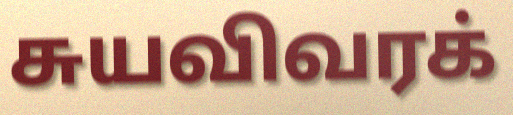
சுயவிவரக்